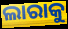
ଲାରାକୁ